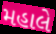
મહાલે